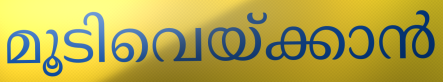
മൂടിവെയ്ക്കാൻ